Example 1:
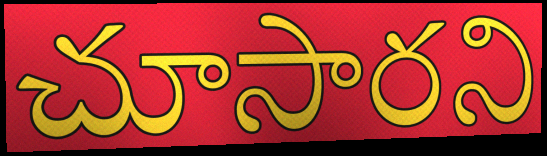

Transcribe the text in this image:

చూసారని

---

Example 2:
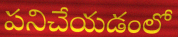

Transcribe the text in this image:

పనిచేయడంలో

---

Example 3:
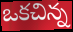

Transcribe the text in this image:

ఒకచిన్న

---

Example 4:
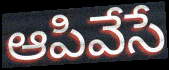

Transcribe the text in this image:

ఆపివేసే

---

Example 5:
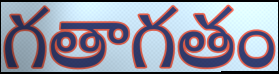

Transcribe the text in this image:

గతాగతం